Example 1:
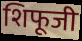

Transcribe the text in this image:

शिफूजी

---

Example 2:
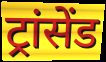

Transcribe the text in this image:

ट्रांसेंड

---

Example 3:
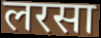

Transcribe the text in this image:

लरसा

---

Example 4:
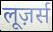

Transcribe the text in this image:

लूज़र्स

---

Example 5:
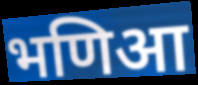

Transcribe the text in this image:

भणिआ